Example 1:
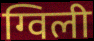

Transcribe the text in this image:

ग्विली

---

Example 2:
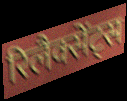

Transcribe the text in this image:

रिलैक्सेंट्स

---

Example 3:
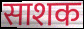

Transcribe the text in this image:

साशक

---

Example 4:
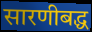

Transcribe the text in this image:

सारणीबद्ध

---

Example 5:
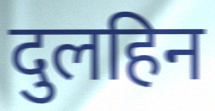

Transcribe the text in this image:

दुलहिन